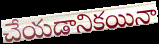
చేయడానికయినా